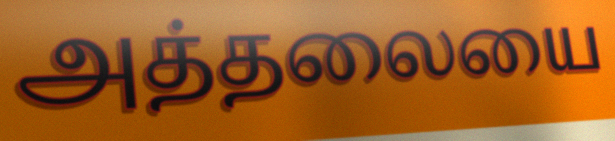
அத்தலையை